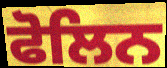
ਫੋਲਿਨ